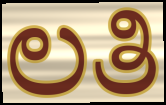
ಲತಿ